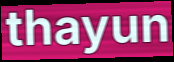
thayun